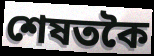
শেষতকৈ